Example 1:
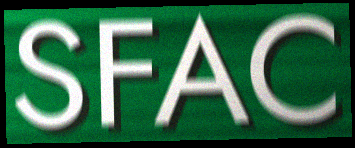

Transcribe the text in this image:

SFAC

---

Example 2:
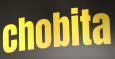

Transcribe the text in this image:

chobita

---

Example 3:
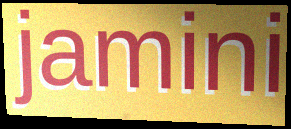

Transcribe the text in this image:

jamini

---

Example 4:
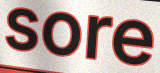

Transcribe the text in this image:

sore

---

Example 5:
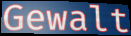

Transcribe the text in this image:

Gewalt